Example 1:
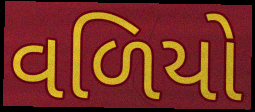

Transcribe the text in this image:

વળિયો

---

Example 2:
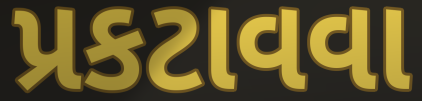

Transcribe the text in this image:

પ્રકટાવવા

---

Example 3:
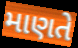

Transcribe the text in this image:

માણતે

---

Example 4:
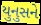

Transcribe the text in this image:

યુનુસને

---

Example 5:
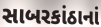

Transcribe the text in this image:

સાબરકાંઠાનાં